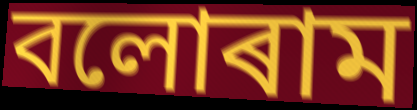
বলোৰাম